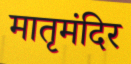
मातृमंदिर